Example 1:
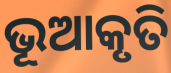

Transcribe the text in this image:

ଭୂଆକୃତି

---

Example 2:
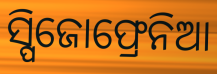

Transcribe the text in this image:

ସ୍ପିଜୋଫ୍ରେନିଆ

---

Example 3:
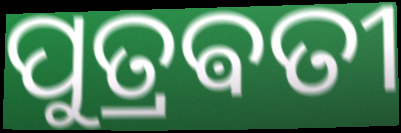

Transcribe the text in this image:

ପୁତ୍ରଵତୀ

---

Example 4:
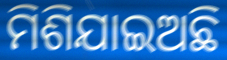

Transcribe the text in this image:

ମିଶିଯାଇଅଛି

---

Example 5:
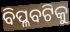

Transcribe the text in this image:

ବିପ୍ଳବଟିକୁ